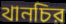
থানচির